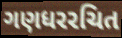
ગણધરરચિત